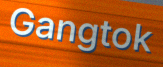
Gangtok